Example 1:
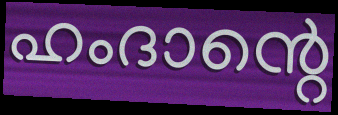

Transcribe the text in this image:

ഹംദാന്റെ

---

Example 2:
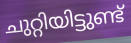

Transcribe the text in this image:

ചുറ്റിയിട്ടുണ്ട്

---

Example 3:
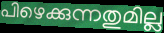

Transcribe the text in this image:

പിഴെക്കുന്നതുമില്ല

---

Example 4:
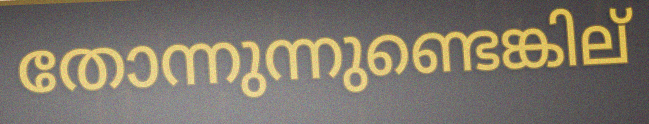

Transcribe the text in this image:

തോന്നുന്നുണ്ടെങ്കില്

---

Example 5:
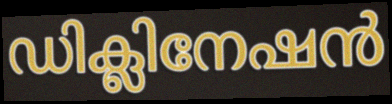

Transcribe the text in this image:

ഡിക്ലിനേഷൻ